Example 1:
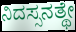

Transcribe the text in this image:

ನಿದಸ್ಸನತ್ಥೇ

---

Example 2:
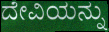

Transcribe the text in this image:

ದೇವಿಯನ್ನು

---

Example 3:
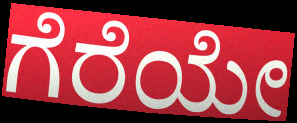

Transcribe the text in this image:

ಗೆರೆಯೇ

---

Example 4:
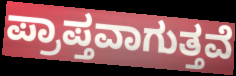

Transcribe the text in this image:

ಪ್ರಾಪ್ತವಾಗುತ್ತವೆ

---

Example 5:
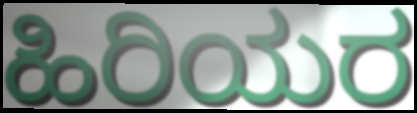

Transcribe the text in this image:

ಹಿರಿಯರ